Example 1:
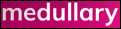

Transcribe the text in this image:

medullary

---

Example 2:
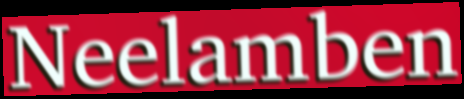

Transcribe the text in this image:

Neelamben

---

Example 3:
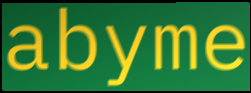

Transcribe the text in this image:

abyme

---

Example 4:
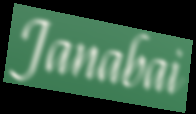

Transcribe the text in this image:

Janabai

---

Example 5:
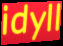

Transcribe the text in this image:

idyll